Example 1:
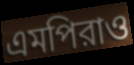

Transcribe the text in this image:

এমপিরাও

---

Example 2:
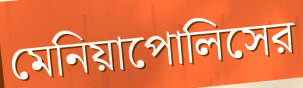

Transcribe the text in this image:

মেনিয়াপোলিসের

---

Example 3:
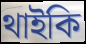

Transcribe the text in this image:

থাইকি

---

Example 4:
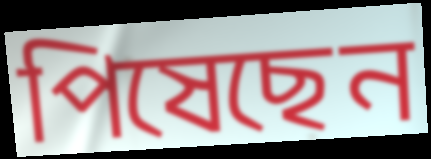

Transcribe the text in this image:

পিষেছেন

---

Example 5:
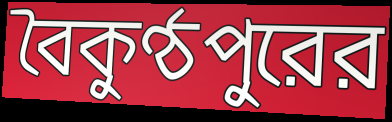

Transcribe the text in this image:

বৈকুণ্ঠপুরের